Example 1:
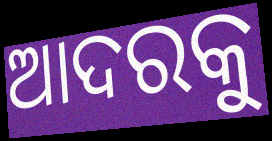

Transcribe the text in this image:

ଆଦରକୁ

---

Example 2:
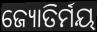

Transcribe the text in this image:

ଜ୍ୟୋତିର୍ମୟ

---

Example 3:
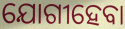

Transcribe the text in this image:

ଯୋଗୀହେବା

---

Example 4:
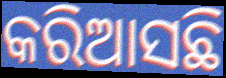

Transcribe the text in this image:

କରିଆସଛି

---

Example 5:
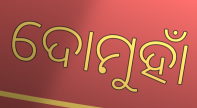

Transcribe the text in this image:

ଦୋମୁହାଁ